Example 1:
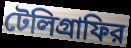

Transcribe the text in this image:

টেলিগ্রাফির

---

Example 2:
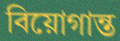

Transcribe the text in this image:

বিয়োগান্ত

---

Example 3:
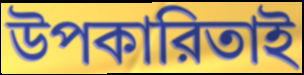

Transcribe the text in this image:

উপকারিতাই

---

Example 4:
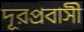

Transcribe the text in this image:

দূরপ্রবাসী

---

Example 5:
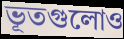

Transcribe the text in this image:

ভূতগুলোও